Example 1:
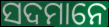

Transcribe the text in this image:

ସଦମାନେ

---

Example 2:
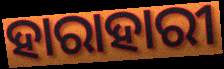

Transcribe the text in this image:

ହାରାହାରୀ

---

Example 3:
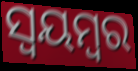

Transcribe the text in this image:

ସ୍ଵୟମ୍ବର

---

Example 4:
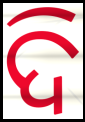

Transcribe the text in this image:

ଦି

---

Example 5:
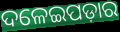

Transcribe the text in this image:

ଦଳେଇପଡ଼ାର